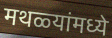
मथळ्यांमध्ये